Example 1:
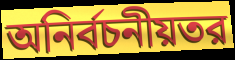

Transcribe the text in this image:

অনির্বচনীয়তর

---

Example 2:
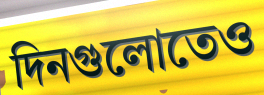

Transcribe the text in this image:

দিনগুলোতেও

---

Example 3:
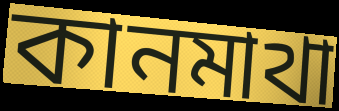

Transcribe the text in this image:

কানমাথা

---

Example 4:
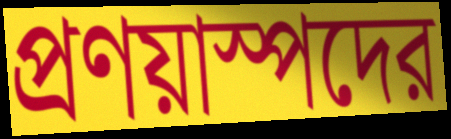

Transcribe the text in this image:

প্রণয়াস্পদের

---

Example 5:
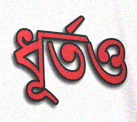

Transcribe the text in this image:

ধূর্তও